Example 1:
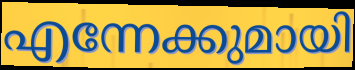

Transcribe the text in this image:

എന്നേക്കുമായി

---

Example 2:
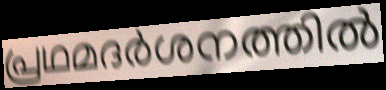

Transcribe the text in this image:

പ്രഥമദർശനത്തിൽ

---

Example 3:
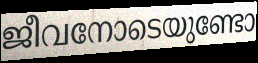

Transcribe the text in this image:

ജീവനോടെയുണ്ടോ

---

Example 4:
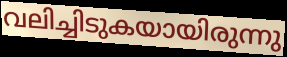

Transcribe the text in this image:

വലിച്ചിടുകയായിരുന്നു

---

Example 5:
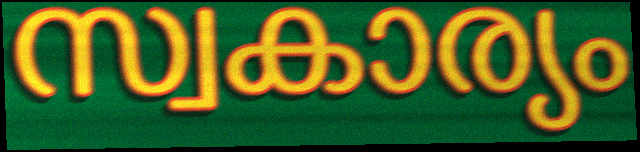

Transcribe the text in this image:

സ്വകാര്യം